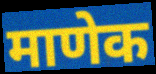
माणेक